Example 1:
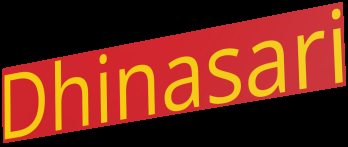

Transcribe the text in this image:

Dhinasari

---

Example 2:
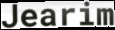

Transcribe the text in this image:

Jearim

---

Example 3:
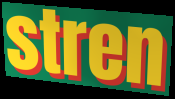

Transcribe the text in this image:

stren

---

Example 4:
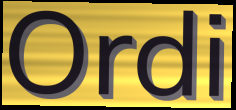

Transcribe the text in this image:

Ordi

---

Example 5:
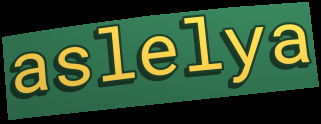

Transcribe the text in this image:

aslelya